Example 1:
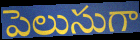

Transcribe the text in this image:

పెలుసుగా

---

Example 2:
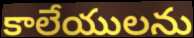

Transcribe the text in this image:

కాలేయులను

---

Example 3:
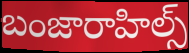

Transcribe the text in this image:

బంజారాహిల్స్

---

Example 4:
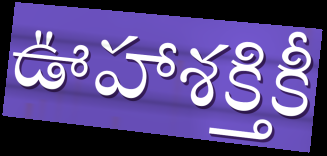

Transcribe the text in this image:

ఊహాశక్తికీ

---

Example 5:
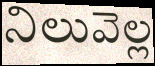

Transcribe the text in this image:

నిలువెల్ల